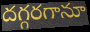
దగ్గరగానూ